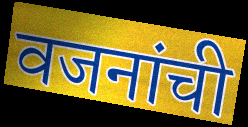
वजनांची